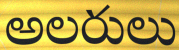
అలరులు